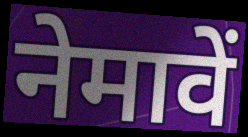
नेमावें